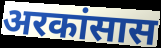
अरकांसास